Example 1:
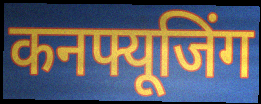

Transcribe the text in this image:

कनफ्यूजिंग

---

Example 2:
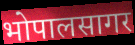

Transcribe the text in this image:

भोपालसागर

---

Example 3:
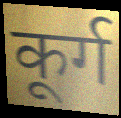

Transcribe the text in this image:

कूर्ग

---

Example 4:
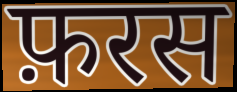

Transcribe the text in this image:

फ़रस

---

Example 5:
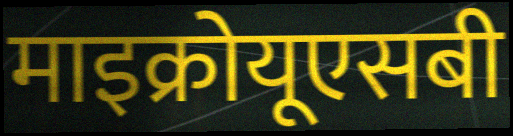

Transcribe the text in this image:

माइक्रोयूएसबी